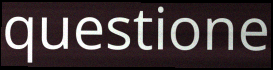
questione